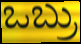
ಒಬ್ರು